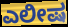
ಎಲೀಷ